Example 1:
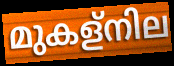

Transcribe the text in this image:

മുകള്നില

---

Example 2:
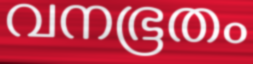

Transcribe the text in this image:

വനഭൂതം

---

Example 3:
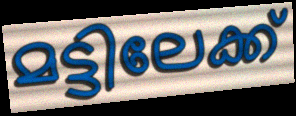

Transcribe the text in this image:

മട്ടിലേക്ക്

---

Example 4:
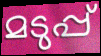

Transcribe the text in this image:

മടുപ്പ്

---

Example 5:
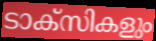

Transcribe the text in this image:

ടാക്സികളും